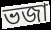
ভজা